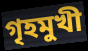
গৃহমুখী